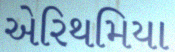
એરિથમિયા